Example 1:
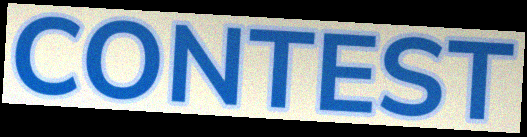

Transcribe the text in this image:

CONTEST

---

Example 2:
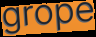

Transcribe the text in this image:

grope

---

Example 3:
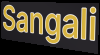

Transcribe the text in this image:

Sangali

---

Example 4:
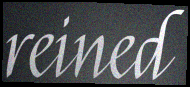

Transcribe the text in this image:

reined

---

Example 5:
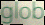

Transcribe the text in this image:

glob